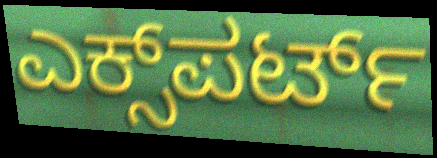
ಎಕ್ಸ್‌ಪರ್ಟ್